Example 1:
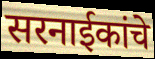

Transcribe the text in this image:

सरनाईकांचे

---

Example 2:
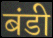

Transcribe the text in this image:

बंडी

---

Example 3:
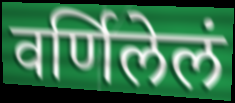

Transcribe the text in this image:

वर्णिलेलं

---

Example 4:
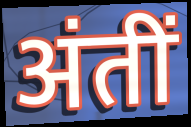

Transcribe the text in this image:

अंतीं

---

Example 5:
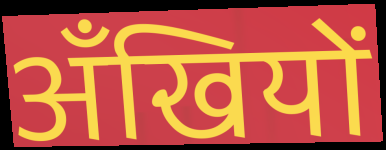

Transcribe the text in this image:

अँखियों